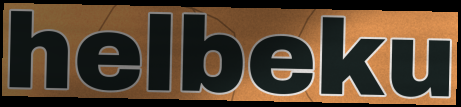
helbeku